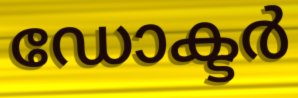
ഡോക്ടർ